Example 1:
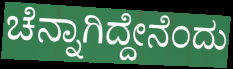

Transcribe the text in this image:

ಚೆನ್ನಾಗಿದ್ದೇನೆಂದು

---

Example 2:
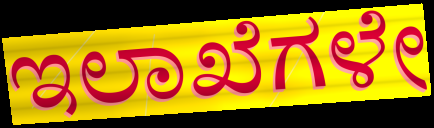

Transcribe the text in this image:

ಇಲಾಖೆಗಳೇ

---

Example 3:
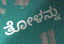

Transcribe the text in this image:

ತೋಳನ್ನು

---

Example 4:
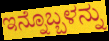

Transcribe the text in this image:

ಇನ್ನೊಬ್ಬಳನ್ನು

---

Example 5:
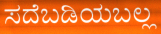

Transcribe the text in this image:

ಸದೆಬಡಿಯಬಲ್ಲ